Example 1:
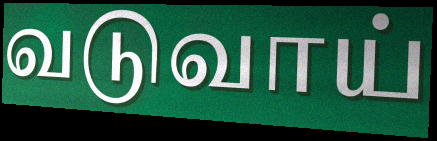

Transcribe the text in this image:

வடுவாய்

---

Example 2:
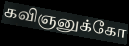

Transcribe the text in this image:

கவிஞனுக்கோ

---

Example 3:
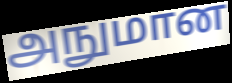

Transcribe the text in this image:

அநுமான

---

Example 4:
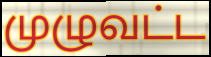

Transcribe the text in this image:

முழுவட்ட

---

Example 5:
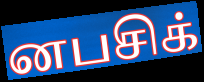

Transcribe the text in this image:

னபசிக்